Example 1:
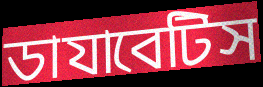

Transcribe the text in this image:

ডাযাবেটিস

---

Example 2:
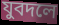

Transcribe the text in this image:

যুবদলে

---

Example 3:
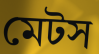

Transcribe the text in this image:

মেটস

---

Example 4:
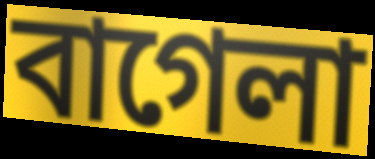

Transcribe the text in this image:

বাগেলা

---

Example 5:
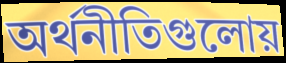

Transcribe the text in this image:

অর্থনীতিগুলোয়